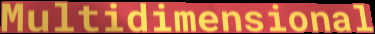
Multidimensional